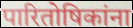
पारितोषिकांना